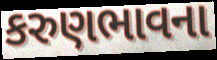
કરુણભાવના